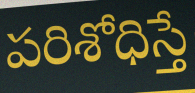
పరిశోధిస్తే